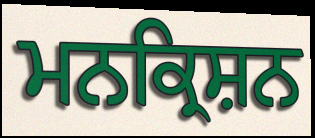
ਮਨਕ੍ਰਿਸ਼ਨ